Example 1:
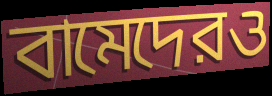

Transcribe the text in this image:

বামেদেরও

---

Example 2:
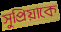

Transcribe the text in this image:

সুপ্রিয়াকে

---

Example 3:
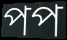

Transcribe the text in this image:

পপ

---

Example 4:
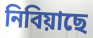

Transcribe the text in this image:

নিবিয়াছে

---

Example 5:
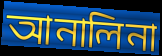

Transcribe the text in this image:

আনালিনা